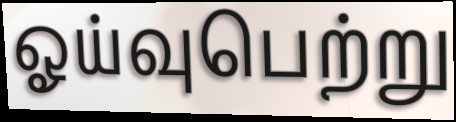
ஓய்வுபெற்று